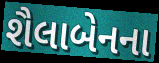
શૈલાબેનના